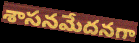
శాసనమేదనగా